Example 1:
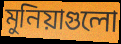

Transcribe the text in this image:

মুনিয়াগুলো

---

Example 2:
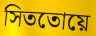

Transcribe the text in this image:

সিততোয়ে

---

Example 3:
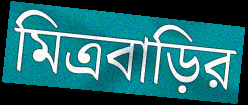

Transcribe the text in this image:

মিত্রবাড়ির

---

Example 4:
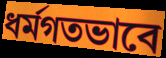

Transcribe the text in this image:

ধর্মগতভাবে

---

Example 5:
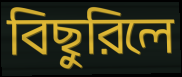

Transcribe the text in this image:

বিছুরিলে